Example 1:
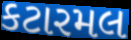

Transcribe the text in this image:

કટારમલ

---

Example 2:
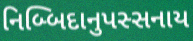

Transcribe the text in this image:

નિબ્બિદાનુપસ્સનાય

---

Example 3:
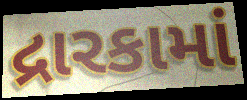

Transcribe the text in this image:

દ્રારકામાં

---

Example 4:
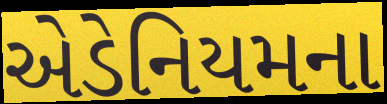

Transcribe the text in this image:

એડેનિયમના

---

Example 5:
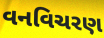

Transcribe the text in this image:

વનવિચરણ